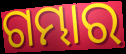
ଗମ୍ଭାର